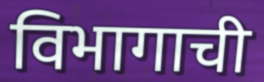
विभागाची